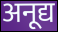
अनूद्य